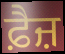
ਫ਼ੈਜ਼